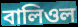
বালিওল